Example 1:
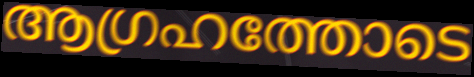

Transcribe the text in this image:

ആഗ്രഹത്തോടെ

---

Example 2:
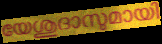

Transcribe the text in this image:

യേശുദാസുമായി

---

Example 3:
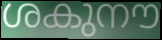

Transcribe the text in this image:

ശകുനൗ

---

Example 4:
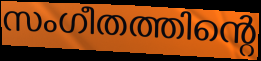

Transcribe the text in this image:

സംഗീതത്തിന്റെ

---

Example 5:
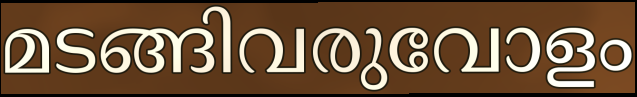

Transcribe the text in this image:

മടങ്ങിവരുവോളം